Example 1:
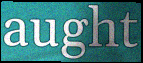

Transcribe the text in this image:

aught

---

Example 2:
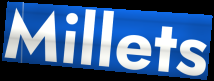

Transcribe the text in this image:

Millets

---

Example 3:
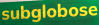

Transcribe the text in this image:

subglobose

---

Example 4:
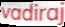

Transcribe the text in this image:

vadiraj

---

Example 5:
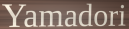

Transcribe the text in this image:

Yamadori